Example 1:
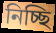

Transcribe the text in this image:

নিচ্ছি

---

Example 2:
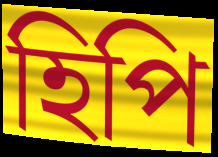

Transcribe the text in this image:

হিপি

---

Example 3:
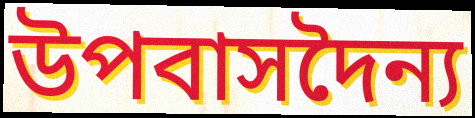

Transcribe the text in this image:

উপবাসদৈন্য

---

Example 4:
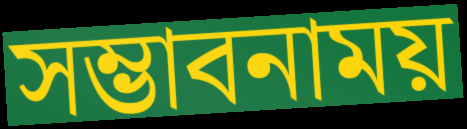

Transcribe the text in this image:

সম্ভাবনাময়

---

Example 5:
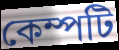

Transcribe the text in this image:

কেম্পটি